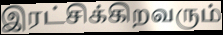
இரட்சிக்கிறவரும்